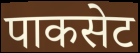
पाकसेट